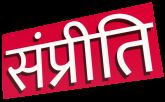
संप्रीति